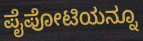
ಪೈಪೋಟಿಯನ್ನೂ